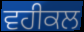
ਵਹੀਕਲ